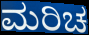
ಮರಿಚ